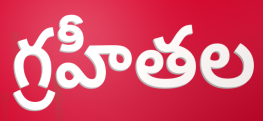
గ్రహీతల